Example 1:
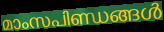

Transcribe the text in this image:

മാംസപിണ്ഡങ്ങൾ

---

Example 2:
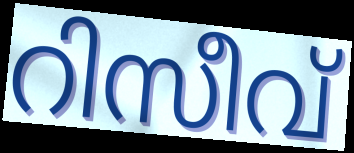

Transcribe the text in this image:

റിസീവ്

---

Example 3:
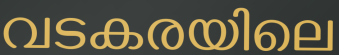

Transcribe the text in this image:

വടകരയിലെ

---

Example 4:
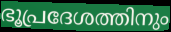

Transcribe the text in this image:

ഭൂപ്രദേശത്തിനും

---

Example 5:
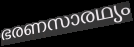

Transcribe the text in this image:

ഭരണസാരഥ്യം